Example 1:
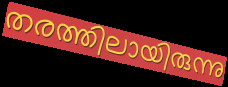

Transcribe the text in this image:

തരത്തിലായിരുന്നു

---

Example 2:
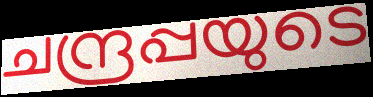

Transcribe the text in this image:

ചന്ദ്രപ്പയുടെ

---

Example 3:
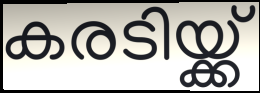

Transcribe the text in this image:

കരടിയ്ക്ക്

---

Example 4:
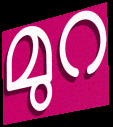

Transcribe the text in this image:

മുറ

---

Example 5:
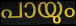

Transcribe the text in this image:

പായും